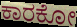
ಕಾರಕೋ